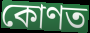
কোণত